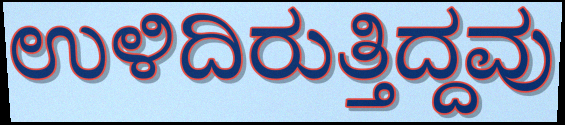
ಉಳಿದಿರುತ್ತಿದ್ದವು